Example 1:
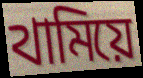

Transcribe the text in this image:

থামিয়ে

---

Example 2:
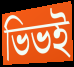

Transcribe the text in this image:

ভিভই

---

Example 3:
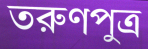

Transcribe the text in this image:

তরুণপুত্র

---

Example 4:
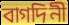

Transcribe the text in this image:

বাগদিনী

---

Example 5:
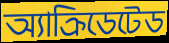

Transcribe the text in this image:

অ্যাক্রিডেটেড